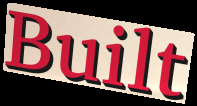
Built